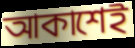
আকাশেই